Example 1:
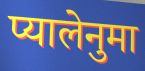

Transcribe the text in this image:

प्यालेनुमा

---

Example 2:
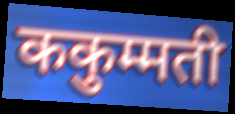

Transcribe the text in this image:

ककुम्मती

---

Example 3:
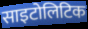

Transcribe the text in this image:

साइटोलिटिक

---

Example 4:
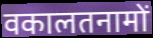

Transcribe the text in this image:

वकालतनामों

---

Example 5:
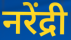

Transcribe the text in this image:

नरेंद्री